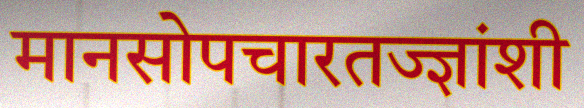
मानसोपचारतज्ज्ञांशी